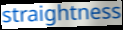
straightness